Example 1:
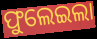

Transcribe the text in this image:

ଫୁଲେଇଲା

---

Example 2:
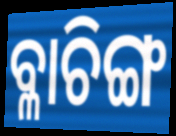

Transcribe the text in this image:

ବ୍ଳାଚିଙ୍ଗ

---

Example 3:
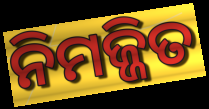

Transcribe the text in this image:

ନିମଜ୍ଜିତ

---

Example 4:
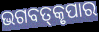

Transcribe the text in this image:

ଭଗବତ୍‌କୃପାର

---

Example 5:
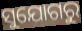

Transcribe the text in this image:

ସୁଯୋଗରୁ